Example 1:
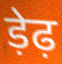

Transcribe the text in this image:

ड़ेढ़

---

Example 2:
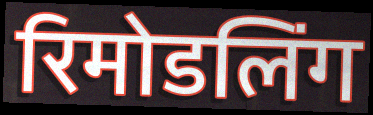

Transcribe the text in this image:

रिमोडलिंग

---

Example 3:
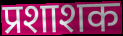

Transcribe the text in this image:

प्रशाशक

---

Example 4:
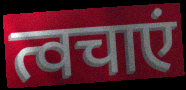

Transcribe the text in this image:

त्वचाएं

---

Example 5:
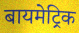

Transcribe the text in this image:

बायमेट्रिक